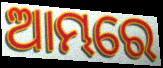
ଆମ୍ଭରେ